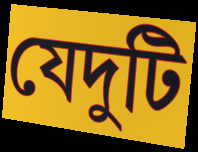
যেদুটি